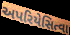
અપરિયેસિત્વા